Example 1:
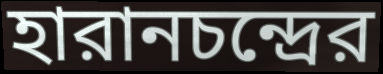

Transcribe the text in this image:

হারানচন্দ্রের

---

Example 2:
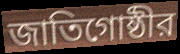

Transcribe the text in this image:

জাতিগোষ্ঠীর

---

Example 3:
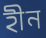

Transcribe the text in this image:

হীন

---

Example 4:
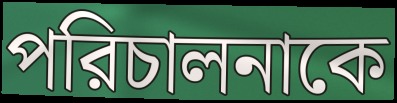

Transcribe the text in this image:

পরিচালনাকে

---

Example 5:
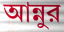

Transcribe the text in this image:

আন্নুর